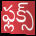
ఫ్లక్స్